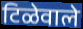
टिळेवाले